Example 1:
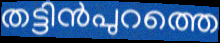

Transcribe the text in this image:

തട്ടിൻപുറത്തെ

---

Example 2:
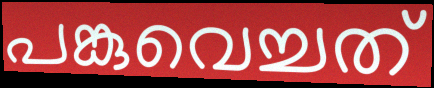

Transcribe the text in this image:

പങ്കുവെച്ചത്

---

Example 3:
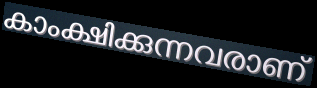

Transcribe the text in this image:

കാംക്ഷിക്കുന്നവരാണ്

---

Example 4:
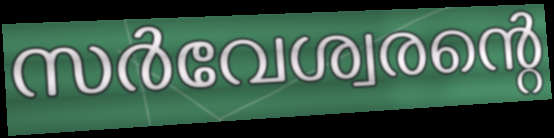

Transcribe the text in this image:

സർവേശ്വരന്റെ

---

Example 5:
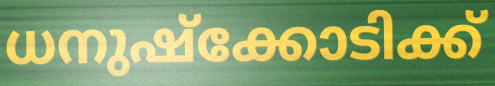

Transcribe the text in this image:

ധനുഷ്ക്കോടിക്ക്